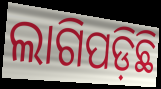
ଲାଗିପଡ଼ିଛି